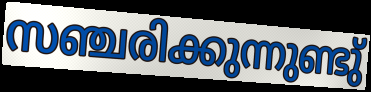
സഞ്ചരിക്കുന്നുണ്ടു്